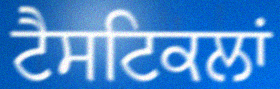
ਟੈਸਟਿਕਲਾਂ